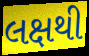
લક્ષથી